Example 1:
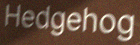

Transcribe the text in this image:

Hedgehog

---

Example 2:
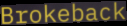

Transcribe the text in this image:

Brokeback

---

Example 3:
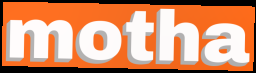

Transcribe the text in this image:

motha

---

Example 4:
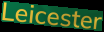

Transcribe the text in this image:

Leicester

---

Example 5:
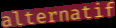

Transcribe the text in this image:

alternatif